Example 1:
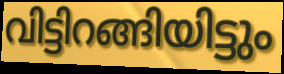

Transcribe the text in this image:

വിട്ടിറങ്ങിയിട്ടും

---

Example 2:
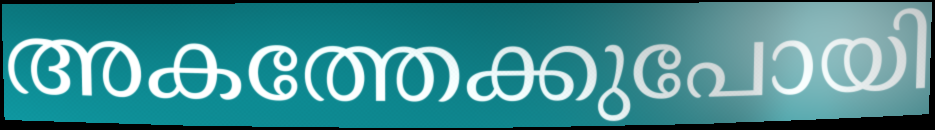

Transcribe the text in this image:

അകത്തേക്കുപോയി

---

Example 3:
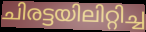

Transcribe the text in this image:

ചിരട്ടയിലിറ്റിച്ച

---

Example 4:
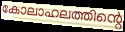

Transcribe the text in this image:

കോലാഹലത്തിന്റെ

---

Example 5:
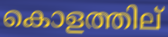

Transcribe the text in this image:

കൊളത്തില്